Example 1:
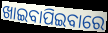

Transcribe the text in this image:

ଖାଇବାପିଇବାରେ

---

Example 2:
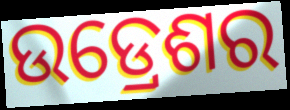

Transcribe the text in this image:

ଉଡ୍ରେଶର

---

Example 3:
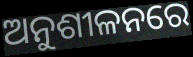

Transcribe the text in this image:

ଅନୁଶୀଳନରେ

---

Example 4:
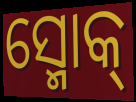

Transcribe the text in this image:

ସ୍ମୋକ୍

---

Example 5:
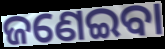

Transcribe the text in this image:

ଜଣେଇବା